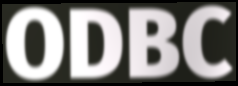
ODBC